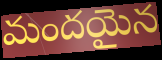
మందయైన